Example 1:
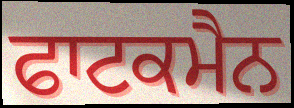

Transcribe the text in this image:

ਫਾਟਕਮੈਨ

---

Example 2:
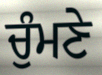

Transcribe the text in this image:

ਚੁੰਮਣੇ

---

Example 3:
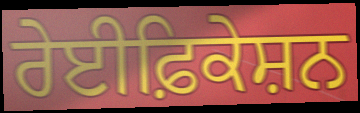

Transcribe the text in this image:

ਰੇਈਫ਼ਿਕੇਸ਼ਨ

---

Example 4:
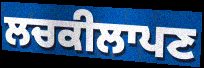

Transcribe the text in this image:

ਲਚਕੀਲਾਪਣ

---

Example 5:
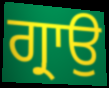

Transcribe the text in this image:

ਗ੍ਰਾਉ